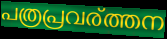
പത്രപ്രവര്ത്തന